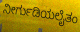
ನೀರ್ಗುಡಿಯಲೈತಂ